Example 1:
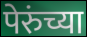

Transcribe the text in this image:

पेरुंच्या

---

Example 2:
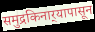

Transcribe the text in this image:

समुद्रकिनार्यापासून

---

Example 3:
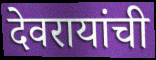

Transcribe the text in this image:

देवरायांची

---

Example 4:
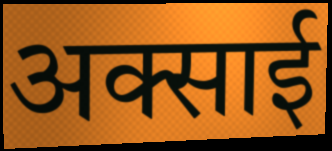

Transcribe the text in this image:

अक्साई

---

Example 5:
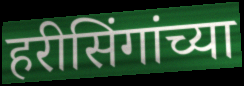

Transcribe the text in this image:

हरीसिंगांच्या